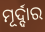
ମୂର୍ଦ୍ଦାର